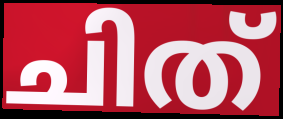
ചിത്